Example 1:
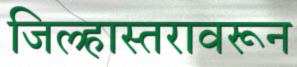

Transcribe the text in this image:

जिल्हास्तरावरून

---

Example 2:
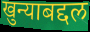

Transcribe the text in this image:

खुन्याबद्दल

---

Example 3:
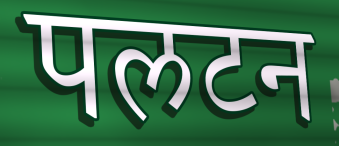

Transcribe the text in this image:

पलटन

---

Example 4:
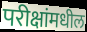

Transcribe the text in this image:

परीक्षांमधील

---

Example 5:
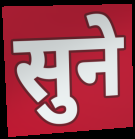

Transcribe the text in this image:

सुने